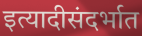
इत्यादीसंदर्भात